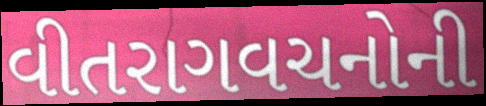
વીતરાગવચનોની